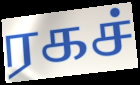
ரகச்